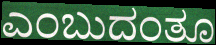
ಎಂಬುದಂತೂ